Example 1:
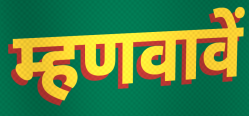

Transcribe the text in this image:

म्हणवावें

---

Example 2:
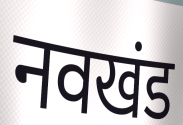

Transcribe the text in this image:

नवखंड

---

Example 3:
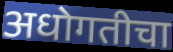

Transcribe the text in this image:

अधोगतीचा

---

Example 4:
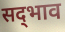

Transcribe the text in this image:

सद्‍भाव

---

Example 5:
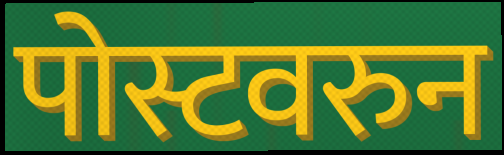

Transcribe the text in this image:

पोस्टवरुन